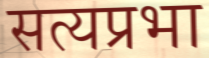
सत्यप्रभा